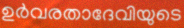
ഉർവരതാദേവിയുടെ